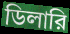
ডিলারি